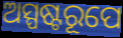
ଅସ୍ପଷ୍ଟରୂପେ